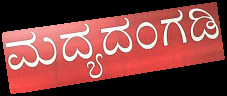
ಮದ್ಯದಂಗಡಿ